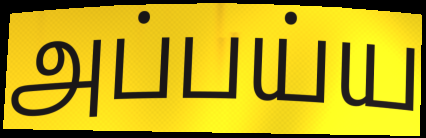
அப்பய்ய